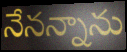
నేనన్నాను